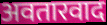
अवतारवाद